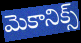
మెకానిక్స్